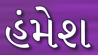
હંમેશ